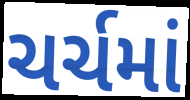
ચર્ચમાં